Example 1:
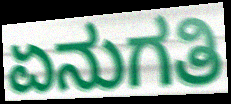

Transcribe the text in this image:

ಏನುಗತಿ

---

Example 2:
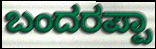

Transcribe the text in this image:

ಬಂದರಪ್ಪಾ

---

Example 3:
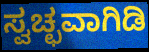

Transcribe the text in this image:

ಸ್ವಚ್ಛವಾಗಿಡಿ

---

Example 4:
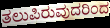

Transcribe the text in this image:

ತಲುಪಿರುವುದರಿಂದ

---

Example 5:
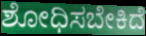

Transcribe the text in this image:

ಶೋಧಿಸಬೇಕಿದೆ